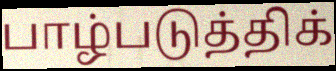
பாழ்படுத்திக்